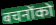
बचनोंको